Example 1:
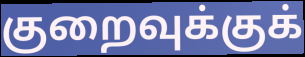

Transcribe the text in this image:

குறைவுக்குக்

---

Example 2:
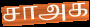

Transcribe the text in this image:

சாஅக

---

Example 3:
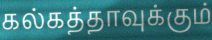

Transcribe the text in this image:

கல்கத்தாவுக்கும்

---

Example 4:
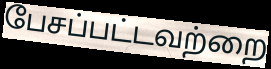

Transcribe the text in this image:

பேசப்பட்டவற்றை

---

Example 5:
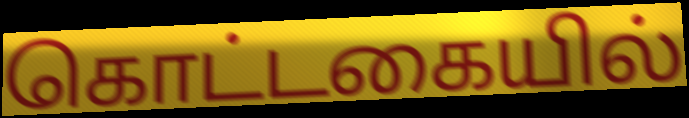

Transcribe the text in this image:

கொட்டகையில்